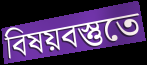
বিষয়বস্তুতে